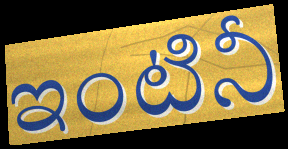
ఇంటినీ